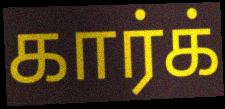
கார்க்